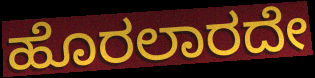
ಹೊರಲಾರದೇ